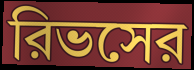
রিভসের